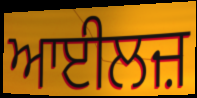
ਆਈਲਜ਼